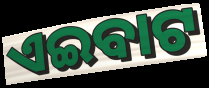
ଏଇବାଟ